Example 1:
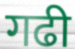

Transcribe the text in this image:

गढी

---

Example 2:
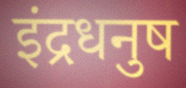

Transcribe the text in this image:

इंद्रधनुष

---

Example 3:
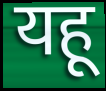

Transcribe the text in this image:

यहू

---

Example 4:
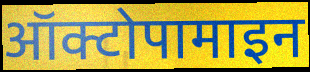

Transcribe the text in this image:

ऑक्टोपामाइन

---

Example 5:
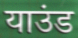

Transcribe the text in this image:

याउंड